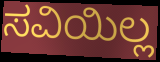
ಸವಿಯಿಲ್ಲ